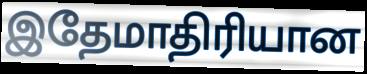
இதேமாதிரியான